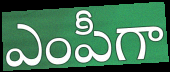
ఎంపీగా